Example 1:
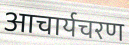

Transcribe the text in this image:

आचार्यचरण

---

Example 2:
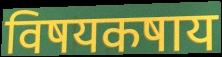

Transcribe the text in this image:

विषयकषाय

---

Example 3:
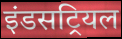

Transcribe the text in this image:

इंडसट्रियल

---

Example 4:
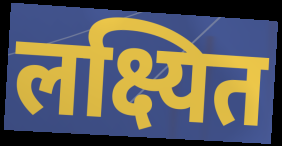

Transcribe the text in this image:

लक्ष्यित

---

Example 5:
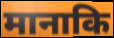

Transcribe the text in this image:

मानाकि